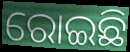
ରୋଇଛି